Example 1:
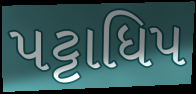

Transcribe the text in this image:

પટ્ટાધિપ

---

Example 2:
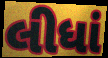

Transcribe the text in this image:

લીધાં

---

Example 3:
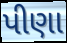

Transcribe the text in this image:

પીણા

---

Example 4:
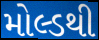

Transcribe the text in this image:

મોલ્ડથી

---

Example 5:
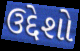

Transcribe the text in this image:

ઉદ્દેશો